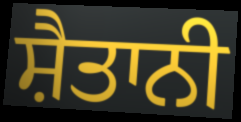
ਸ਼ੈਤਾਨੀ